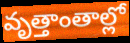
వృత్తాంతాల్లో